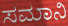
ಸಮಾನಿ